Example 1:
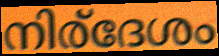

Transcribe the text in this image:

നിര്ദേശം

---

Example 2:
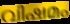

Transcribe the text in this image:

വിഷമം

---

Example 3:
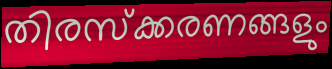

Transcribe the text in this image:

തിരസ്ക്കരണങ്ങളും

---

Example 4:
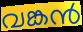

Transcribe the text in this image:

വങ്കൻ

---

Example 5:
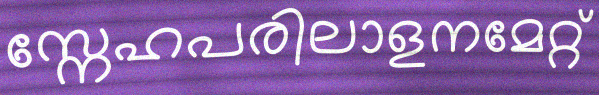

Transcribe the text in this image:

സ്നേഹപരിലാളനമേറ്റ്